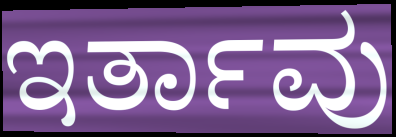
ಇರ್ತಾವು